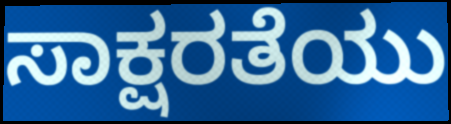
ಸಾಕ್ಷರತೆಯು